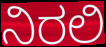
ನಿರಲಿ